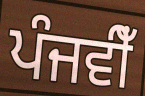
ਪੰਜਵੀਁ